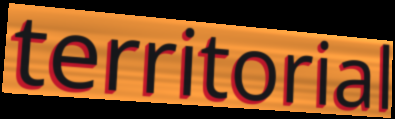
territorial